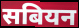
सबियन